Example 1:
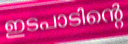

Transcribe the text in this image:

ഇടപാടിന്റെ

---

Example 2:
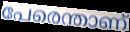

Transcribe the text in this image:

പേരെന്താണ്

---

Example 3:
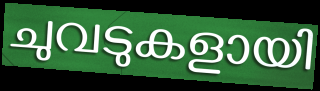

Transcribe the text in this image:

ചുവടുകളായി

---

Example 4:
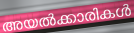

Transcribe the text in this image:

അയൽക്കാരികൾ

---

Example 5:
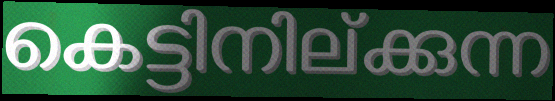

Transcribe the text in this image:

കെട്ടിനില്ക്കുന്ന